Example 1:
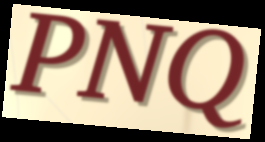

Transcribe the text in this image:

PNQ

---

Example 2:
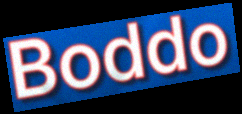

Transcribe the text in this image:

Boddo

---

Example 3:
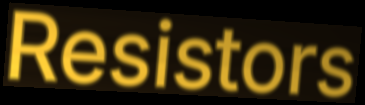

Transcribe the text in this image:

Resistors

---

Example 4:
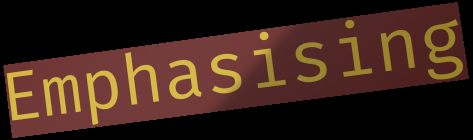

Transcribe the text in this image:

Emphasising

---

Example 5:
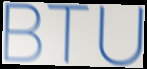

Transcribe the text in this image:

BTU